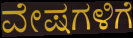
ವೇಷಗಳಿಗೆ